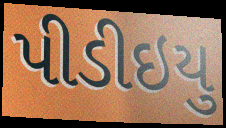
પીડીઇયુ